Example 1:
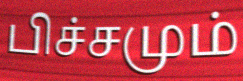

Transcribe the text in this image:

பிச்சமும்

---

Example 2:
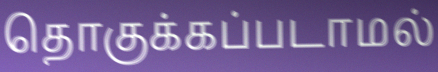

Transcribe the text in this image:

தொகுக்கப்படாமல்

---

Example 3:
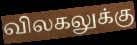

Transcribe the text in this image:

விலகலுக்கு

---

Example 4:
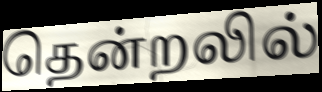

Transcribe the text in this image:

தென்றலில்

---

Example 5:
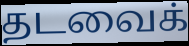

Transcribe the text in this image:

தடவைக்